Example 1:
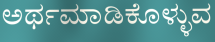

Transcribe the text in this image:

ಅರ್ಥಮಾಡಿಕೊಳ್ಳುವ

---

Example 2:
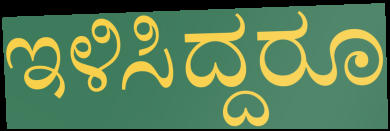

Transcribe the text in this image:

ಇಳಿಸಿದ್ದರೂ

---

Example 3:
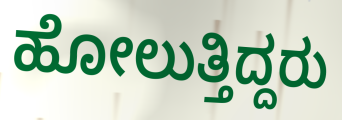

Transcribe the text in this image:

ಹೋಲುತ್ತಿದ್ದರು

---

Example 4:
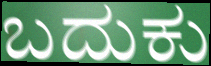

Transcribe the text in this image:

ಬದುಕು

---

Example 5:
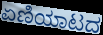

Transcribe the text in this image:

ಏಣಿಯಾಟದ